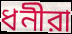
ধনীরা